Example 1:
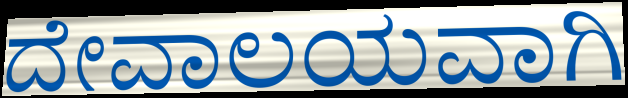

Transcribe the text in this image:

ದೇವಾಲಯವಾಗಿ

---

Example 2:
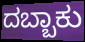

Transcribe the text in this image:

ದಬ್ಬಾಕು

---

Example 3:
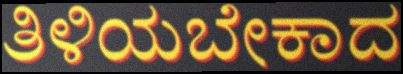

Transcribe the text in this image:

ತಿಳಿಯಬೇಕಾದ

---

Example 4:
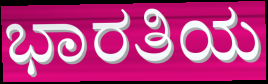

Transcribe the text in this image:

ಭಾರತಿಯ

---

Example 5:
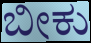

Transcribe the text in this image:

ಬೀಕು